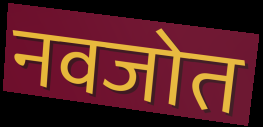
नवजोत